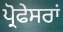
ਪ੍ਰੋਫੇਸਰਾਂ